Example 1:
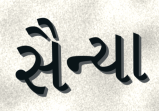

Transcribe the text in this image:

સૈન્યા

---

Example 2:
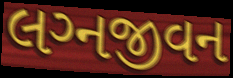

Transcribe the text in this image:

લગ્‍નજીવન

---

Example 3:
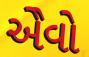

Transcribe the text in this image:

એેવો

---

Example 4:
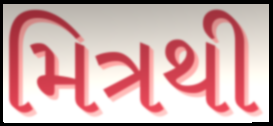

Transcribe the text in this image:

મિત્રથી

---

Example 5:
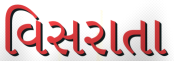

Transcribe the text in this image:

વિસરાતા